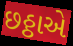
છઠ્ઠાએ